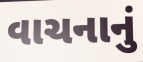
વાચનાનું